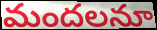
మందలనూ